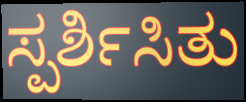
ಸ್ಪರ್ಶಿಸಿತು